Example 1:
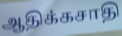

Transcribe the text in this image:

ஆதிக்கசாதி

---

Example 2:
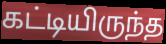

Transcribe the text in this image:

கட்டியிருந்த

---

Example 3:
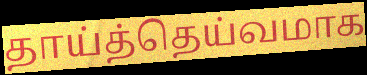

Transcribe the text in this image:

தாய்த்தெய்வமாக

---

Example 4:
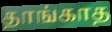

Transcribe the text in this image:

தாங்காத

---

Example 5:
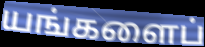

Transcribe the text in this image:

யங்களைப்